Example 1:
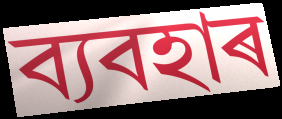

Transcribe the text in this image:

ব্যবহাৰ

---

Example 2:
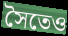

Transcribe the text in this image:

সৈতেও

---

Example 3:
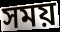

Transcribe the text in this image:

সময়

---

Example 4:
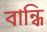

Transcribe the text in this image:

বান্ধি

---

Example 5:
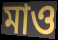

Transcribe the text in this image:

মাও